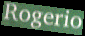
Rogerio